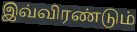
இவ்விரண்டும்